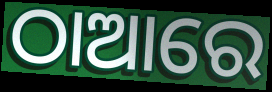
ଠାଆରେ